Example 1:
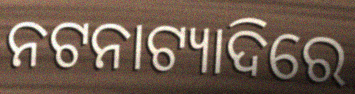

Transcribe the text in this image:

ନଟନାଟ୍ୟାଦିରେ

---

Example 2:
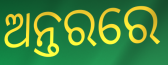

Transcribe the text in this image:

ଅନ୍ତରରେ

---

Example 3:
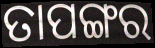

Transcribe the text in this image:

ତାପଙ୍ଗର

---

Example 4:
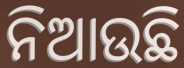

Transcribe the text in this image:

ନିଆଉଛି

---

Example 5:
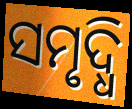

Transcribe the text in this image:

ସମୃଦ୍ଧି